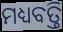
ମଧ୍ୟବତ୍ତି